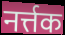
नर्त्तक